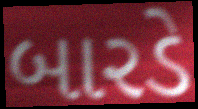
બારડે